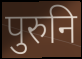
पुरुनि